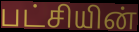
பட்சியின்